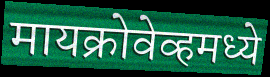
मायक्रोवेव्हमध्ये